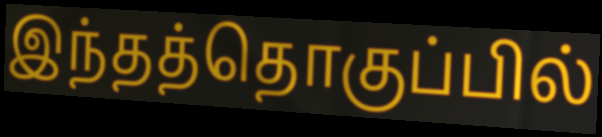
இந்தத்தொகுப்பில்